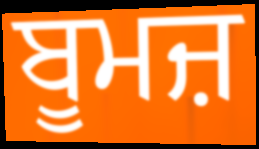
ਬੂਮਜ਼